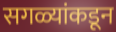
सगळ्यांकडून